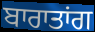
ਬਾਰਾਤਾਂਗ